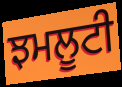
ਝਮਲੂਟੀ